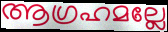
ആഗ്രഹമല്ലേ